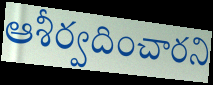
ఆశీర్వదించారని